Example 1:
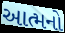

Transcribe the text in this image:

આત્મનો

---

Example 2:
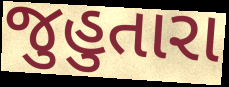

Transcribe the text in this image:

જુહુતારા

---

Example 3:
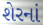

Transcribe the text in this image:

શેરનાં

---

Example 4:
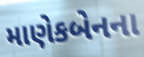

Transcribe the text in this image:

માણેકબેનના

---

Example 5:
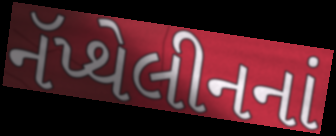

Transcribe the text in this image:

નૅપ્થેલીનનાં